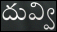
దువ్వి